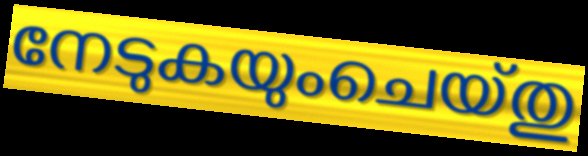
നേടുകയുംചെയ്തു